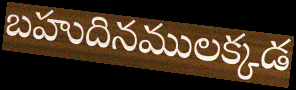
బహుదినములక్కడ